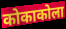
कोकाकोला